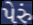
પેરું